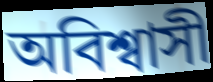
অবিশ্বাসী